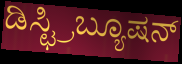
ಡಿಸ್ಟ್ರಿಬ್ಯೂಷನ್